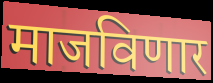
माजविणार